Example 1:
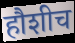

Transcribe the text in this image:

हौशीच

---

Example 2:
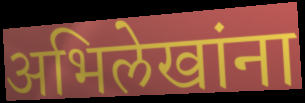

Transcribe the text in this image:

अभिलेखांना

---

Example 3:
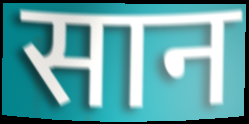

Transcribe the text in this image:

सान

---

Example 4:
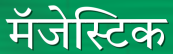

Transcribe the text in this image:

मॅजेस्टिक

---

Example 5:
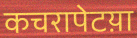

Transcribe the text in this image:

कचरापेटय़ा